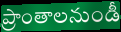
ప్రాంతాలనుండీ